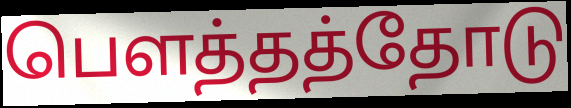
பௌத்தத்தோடு